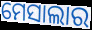
ମେସାଲାର